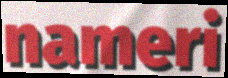
nameri